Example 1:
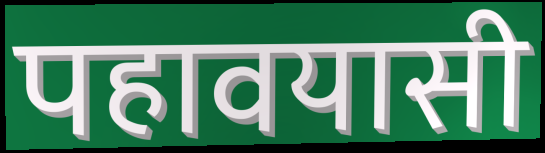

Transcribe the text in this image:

पहावयासी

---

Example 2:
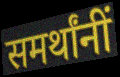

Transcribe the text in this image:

समर्थांनीं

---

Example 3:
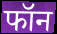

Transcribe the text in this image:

फॉन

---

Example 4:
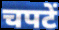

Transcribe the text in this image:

चपटें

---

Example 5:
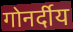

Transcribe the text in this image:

गोनर्दीय